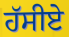
ਹੱਸੀਏ